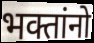
भक्तांनो